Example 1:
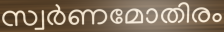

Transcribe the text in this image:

സ്വർണമോതിരം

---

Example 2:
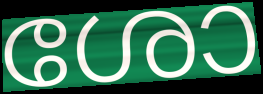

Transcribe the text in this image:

ശോ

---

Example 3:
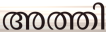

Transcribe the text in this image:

അത്തി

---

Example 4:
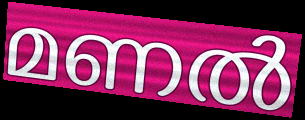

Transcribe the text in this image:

മണൽ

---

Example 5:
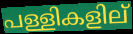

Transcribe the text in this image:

പള്ളികളില്